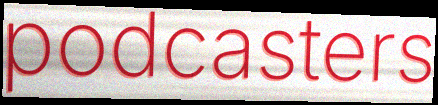
podcasters